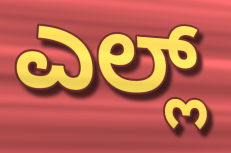
ಎಲ್ಲ್